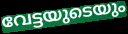
വേട്ടയുടെയും